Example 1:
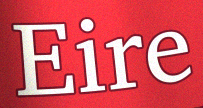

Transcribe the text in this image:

Eire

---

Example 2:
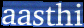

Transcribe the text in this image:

aasthi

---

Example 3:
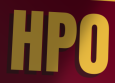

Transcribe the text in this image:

HPO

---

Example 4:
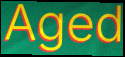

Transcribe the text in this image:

Aged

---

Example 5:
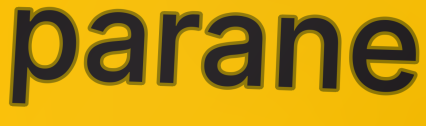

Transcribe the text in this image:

parane